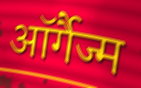
ऑर्गैज्म